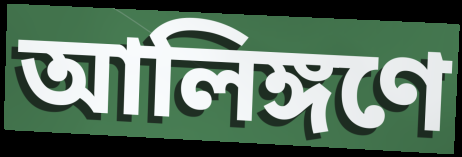
আলিঙ্গণে